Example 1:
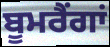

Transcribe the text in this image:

ਬੂਮਰੈਂਗਾਂ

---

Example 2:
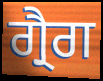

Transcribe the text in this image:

ਗ੍ਰੈਗ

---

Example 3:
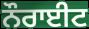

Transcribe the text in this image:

ਨੌਰਾਈਟ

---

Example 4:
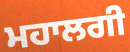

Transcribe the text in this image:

ਮਹਾਲਗੀ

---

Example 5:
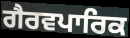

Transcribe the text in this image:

ਗੈਰਵਪਾਰਿਕ